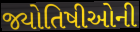
જ્યોતિષીઓની